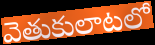
వెతుకులాటలో